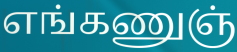
எங்கணுஞ்